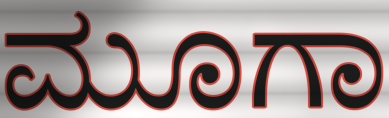
ಮೂಗಾ